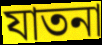
যাতনা